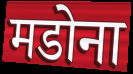
मडोना